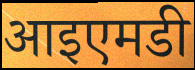
आइएमडी